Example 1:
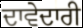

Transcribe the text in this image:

ਦਾਵੇਦਾਰੀ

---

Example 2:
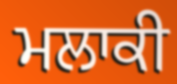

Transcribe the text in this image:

ਮਲਾਕੀ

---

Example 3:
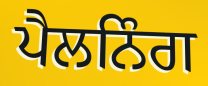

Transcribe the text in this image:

ਪੈਲਨਿੰਗ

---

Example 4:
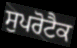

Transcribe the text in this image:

ਸੁਪਰੋਟੈਕ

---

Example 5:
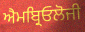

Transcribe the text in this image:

ਐਮਬ੍ਰਿਓਲੋਜੀ